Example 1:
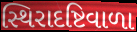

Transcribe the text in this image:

સ્થિરાદષ્ટિવાળા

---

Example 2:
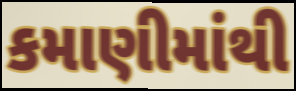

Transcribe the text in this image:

કમાણીમાંથી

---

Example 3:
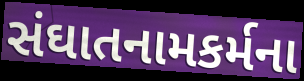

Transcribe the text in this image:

સંઘાતનામકર્મના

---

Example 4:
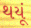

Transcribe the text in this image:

થયૂં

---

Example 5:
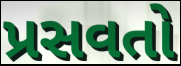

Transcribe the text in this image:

પ્રસવતો